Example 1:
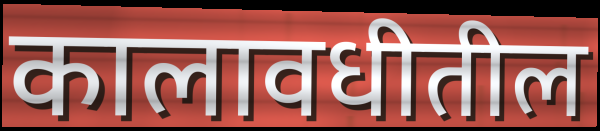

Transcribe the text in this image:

कालावधीतील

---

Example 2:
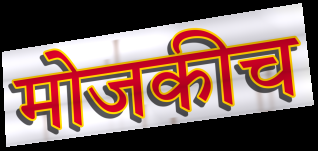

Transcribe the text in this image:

मोजकीच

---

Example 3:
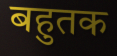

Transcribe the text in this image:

बहुतक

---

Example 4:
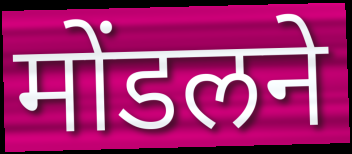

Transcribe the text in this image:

मोंडलने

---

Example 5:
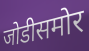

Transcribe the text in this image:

जोडीसमोर